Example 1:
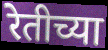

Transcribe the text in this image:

रेतीच्या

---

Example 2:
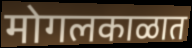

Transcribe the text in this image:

मोगलकाळात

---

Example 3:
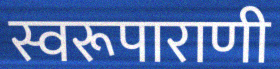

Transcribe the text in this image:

स्वरूपाराणी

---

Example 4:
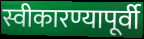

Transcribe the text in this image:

स्वीकारण्यापूर्वी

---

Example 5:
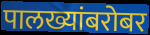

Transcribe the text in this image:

पालख्यांबरोबर